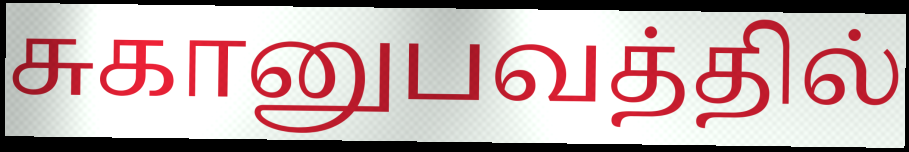
சுகானுபவத்தில்